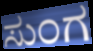
ಸುಂಗ